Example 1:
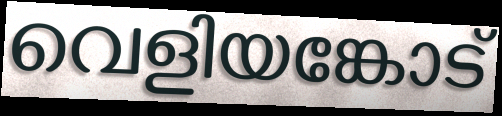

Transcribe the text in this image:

വെളിയങ്കോട്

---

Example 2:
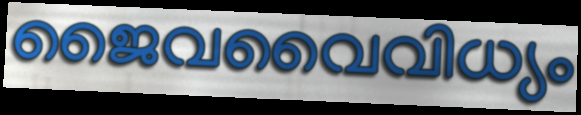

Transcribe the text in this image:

ജൈവവൈവിധ്യം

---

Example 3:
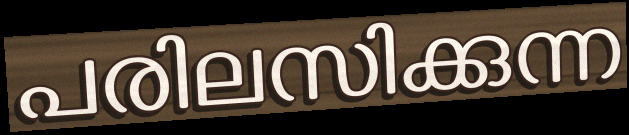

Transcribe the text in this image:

പരിലസിക്കുന്ന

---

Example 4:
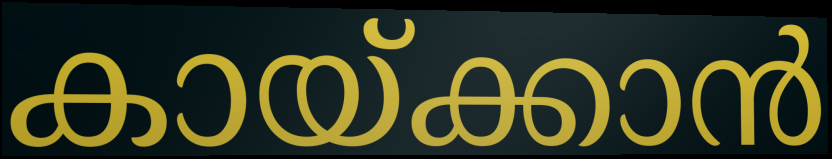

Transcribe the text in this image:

കായ്ക്കാൻ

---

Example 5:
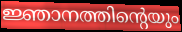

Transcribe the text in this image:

ജ്ഞാനത്തിന്റെയും